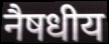
नैषधीय